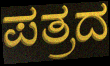
ಪತ್ರದ